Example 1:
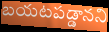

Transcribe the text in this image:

బయటపడ్డానని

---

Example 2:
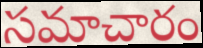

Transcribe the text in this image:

సమాచారం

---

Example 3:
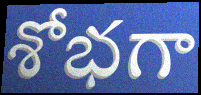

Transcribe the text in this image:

శోభగా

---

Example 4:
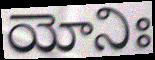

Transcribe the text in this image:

యోనిః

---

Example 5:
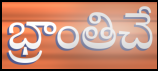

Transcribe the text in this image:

భ్రాంతిచే